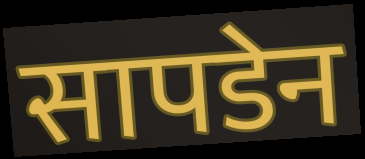
सापडेन